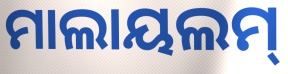
ମାଲାୟଲମ୍